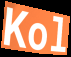
Kol